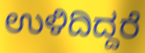
ಉಳಿದಿದ್ದರೆ